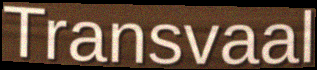
Transvaal